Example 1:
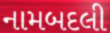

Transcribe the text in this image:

નામબદલી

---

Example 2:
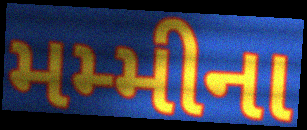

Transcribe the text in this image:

મમ્મીના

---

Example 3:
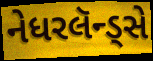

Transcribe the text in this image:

નેધરલૅન્ડ્સે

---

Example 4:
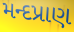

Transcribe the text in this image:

મન્દપ્રાણ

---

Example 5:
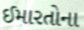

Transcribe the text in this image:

ઈમારતોના